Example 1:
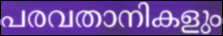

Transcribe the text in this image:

പരവതാനികളും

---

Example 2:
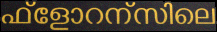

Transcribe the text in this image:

ഫ്ളോറന്സിലെ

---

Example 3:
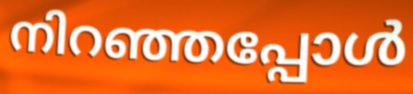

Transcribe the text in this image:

നിറഞ്ഞപ്പോൾ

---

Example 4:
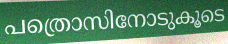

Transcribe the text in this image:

പത്രൊസിനോടുകൂടെ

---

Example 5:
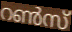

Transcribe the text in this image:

റൺസ്